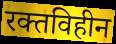
रक्तविहीन